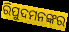
ରିପୁଦମନଙ୍କର